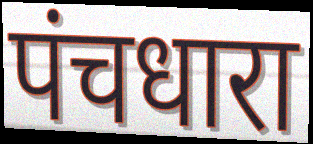
पंचधारा